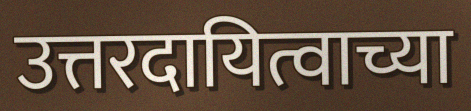
उत्तरदायित्वाच्या